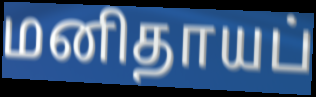
மனிதாயப்